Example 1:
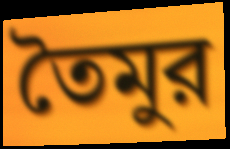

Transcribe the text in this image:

তৈমুর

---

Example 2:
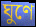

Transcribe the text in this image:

ঘুণে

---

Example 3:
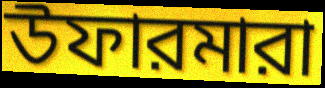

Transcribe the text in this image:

উফারমারা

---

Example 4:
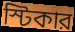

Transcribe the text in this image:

স্টিকার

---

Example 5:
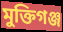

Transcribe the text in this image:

মুক্তিগঞ্জ